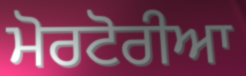
ਮੋਰਟੋਰੀਆ